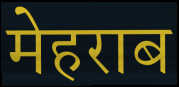
मेहराब